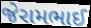
જેરામભાઈ